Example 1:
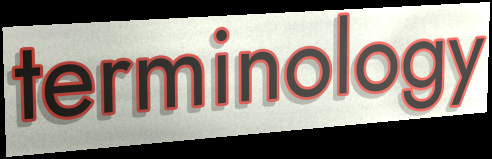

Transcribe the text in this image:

terminology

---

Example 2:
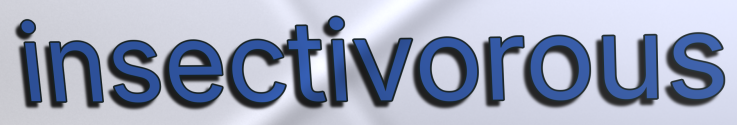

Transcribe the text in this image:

insectivorous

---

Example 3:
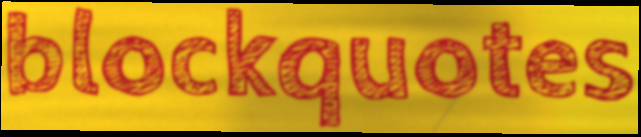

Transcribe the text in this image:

blockquotes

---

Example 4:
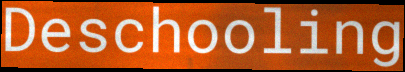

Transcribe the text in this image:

Deschooling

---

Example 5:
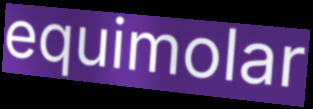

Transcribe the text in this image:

equimolar